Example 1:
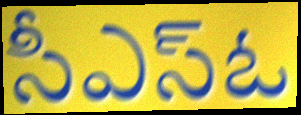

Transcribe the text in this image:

సీఎస్ఓ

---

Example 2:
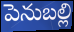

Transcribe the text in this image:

పెనుబల్లి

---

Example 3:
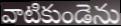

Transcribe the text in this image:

వాటికుండెను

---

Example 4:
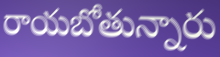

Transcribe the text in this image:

రాయబోతున్నారు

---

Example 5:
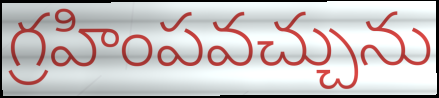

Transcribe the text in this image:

గ్రహింపవచ్చును